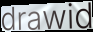
drawid